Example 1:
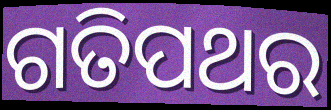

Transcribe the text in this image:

ଗତିପଥର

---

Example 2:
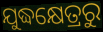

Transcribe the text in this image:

ଯୁଦ୍ଧକ୍ଷେତ୍ରରୁ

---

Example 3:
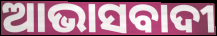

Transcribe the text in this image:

ଆଭାସବାଦୀ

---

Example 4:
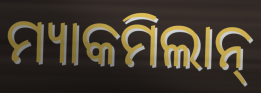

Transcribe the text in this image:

ମ୍ୟାକମିଲାନ୍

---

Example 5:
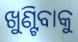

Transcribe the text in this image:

ଖୁଣ୍ଟିବାକୁ